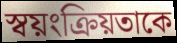
স্বয়ংক্রিয়তাকে